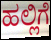
ಹಲ್ಲಿಗೆ